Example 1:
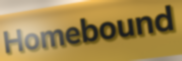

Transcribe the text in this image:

Homebound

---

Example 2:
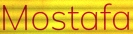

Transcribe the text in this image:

Mostafa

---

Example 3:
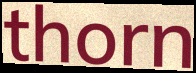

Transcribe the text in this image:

thorn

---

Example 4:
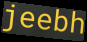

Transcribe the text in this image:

jeebh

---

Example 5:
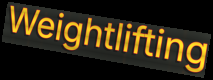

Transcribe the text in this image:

Weightlifting